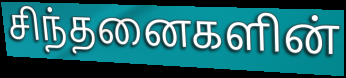
சிந்தனைகளின்